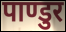
पाण्डुर